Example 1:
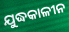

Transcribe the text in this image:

ଯୁଦ୍ଧକାଳୀନ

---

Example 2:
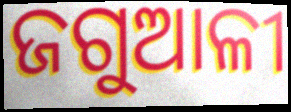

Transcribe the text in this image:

ଜଗୁଆଳୀ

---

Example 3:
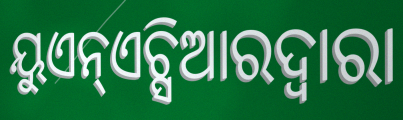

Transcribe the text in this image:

ୟୁଏନ୍ଏଚ୍ସିଆରଦ୍ୱାରା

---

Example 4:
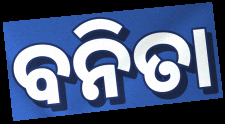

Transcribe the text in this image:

ବନିତା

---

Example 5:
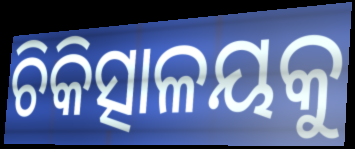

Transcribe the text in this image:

ଚିକିତ୍ସାଳୟକୁ